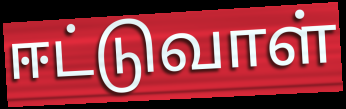
ஈட்டுவாள்